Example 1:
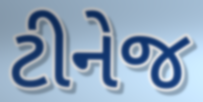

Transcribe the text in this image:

ટીનેજ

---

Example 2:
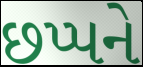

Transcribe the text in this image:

છપ્પને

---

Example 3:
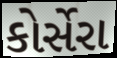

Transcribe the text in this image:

કોર્સેરા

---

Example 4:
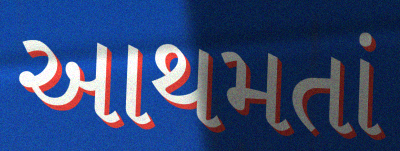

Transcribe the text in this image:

આથમતાં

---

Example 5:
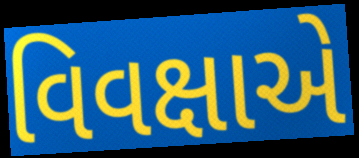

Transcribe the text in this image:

વિવક્ષાએ